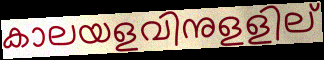
കാലയളവിനുളളില്